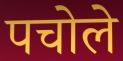
पचोले